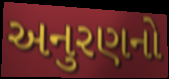
અનુરણનો